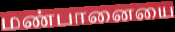
மண்பானையை